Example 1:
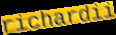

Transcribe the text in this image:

richardii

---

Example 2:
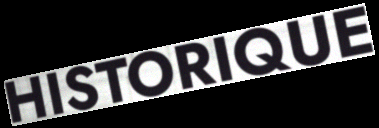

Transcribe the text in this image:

HISTORIQUE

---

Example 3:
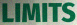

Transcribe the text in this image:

LIMITS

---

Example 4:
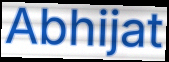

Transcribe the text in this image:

Abhijat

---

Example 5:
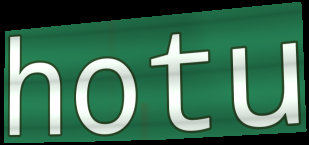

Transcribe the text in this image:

hotu